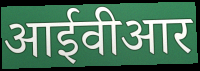
आईवीआर